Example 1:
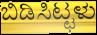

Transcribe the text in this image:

ಬಿಡಿಸಿಟ್ಟಳು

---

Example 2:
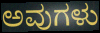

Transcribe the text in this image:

ಅವುಗಳು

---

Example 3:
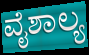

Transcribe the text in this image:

ವೈಶಾಲ್ಯ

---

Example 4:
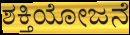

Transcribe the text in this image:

ಶಕ್ತಿಯೋಜನೆ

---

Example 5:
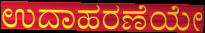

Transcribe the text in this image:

ಉದಾಹರಣೆಯೇ